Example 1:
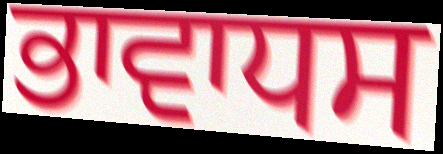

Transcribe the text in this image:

ਭਾਵਾਧਸ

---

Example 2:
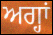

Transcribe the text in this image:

ਅਗ੍ਹਾਂ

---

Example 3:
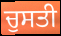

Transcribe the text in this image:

ਚੁਸਤੀ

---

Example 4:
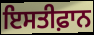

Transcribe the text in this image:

ਇਸਤੀਫ਼ਾਨ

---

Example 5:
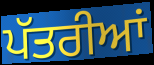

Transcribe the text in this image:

ਪੱਤਰੀਆਂ